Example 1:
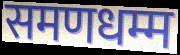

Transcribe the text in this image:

समणधम्म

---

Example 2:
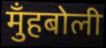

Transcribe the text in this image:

मुँहबोली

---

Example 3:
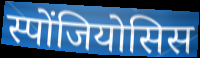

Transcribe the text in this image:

स्पोंजियोसिस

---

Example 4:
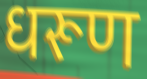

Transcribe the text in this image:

धरूण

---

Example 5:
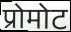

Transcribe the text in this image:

प्रोमोट